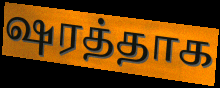
ஷரத்தாக